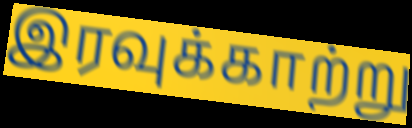
இரவுக்காற்று